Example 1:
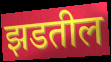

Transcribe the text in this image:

झडतील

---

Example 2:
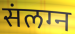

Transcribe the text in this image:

संलग्‍न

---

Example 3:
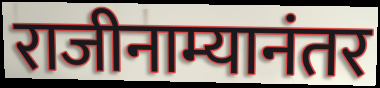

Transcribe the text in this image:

राजीनाम्यानंतर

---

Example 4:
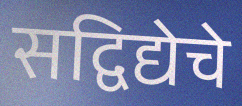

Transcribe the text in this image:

सद्विद्येचे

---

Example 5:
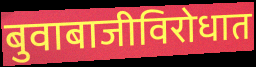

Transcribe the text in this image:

बुवाबाजीविरोधात